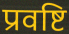
प्रवष्टि